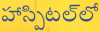
హాస్పిటల్‌లో